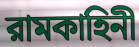
রামকাহিনী